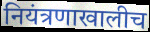
नियंत्रणाखालीच